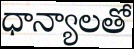
ధాన్యాలతో